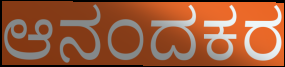
ಆನಂದಕರ